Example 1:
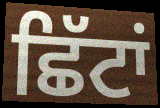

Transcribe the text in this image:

ਛਿੱਟਾਂ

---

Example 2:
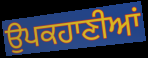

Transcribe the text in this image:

ਉਪਕਹਾਣੀਆਂ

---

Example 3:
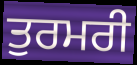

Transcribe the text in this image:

ਤੁਰਮਰੀ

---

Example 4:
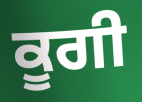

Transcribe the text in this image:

ਕੂਗੀ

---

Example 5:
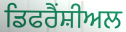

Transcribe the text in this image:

ਡਿਫਰੈਂਸ਼ੀਅਲ